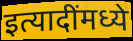
इत्यादींमध्ये